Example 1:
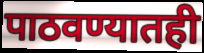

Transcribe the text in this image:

पाठवण्यातही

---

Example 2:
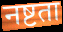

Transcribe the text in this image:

नष्टता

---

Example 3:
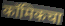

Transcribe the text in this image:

कॉमिकचा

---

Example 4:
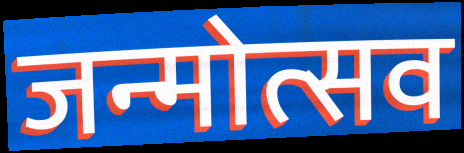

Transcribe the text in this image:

जन्मोत्सव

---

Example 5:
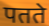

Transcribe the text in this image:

पतते